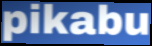
pikabu